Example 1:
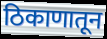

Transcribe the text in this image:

ठिकाणातून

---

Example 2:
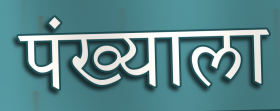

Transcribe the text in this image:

पंख्याला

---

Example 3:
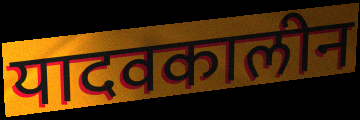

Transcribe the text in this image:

यादवकालीन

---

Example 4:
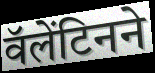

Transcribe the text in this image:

वॅलेंटिनने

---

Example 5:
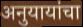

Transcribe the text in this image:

अनुयायांचा